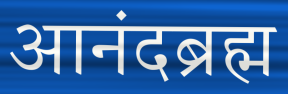
आनंदब्रह्म